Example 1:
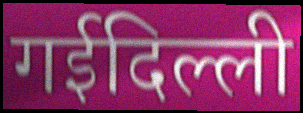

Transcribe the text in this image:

गईदिल्ली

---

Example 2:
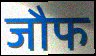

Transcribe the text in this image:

जौफ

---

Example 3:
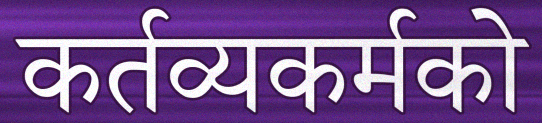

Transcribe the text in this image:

कर्तव्यकर्मको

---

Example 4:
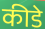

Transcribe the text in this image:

कीडे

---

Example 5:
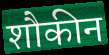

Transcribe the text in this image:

शौकीन